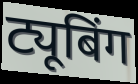
ट्यूबिंग